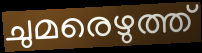
ചുമരെഴുത്ത്